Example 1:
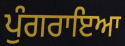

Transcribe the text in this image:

ਪੁੰਗਰਾਇਆ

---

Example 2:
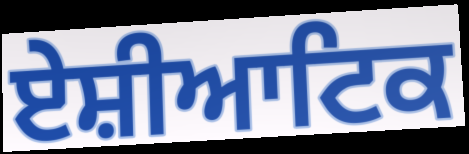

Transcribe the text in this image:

ਏਸ਼ੀਆਟਿਕ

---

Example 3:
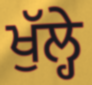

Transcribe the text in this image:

ਖੁੱਲ੍ਹੇ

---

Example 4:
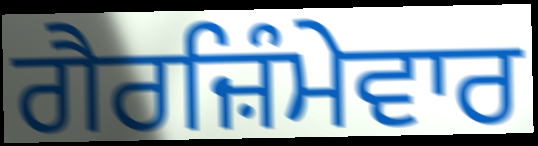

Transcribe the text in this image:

ਗੈਰਜ਼ਿੰਮੇਵਾਰ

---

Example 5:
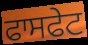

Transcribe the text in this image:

ਫਾਸਫੇਟ